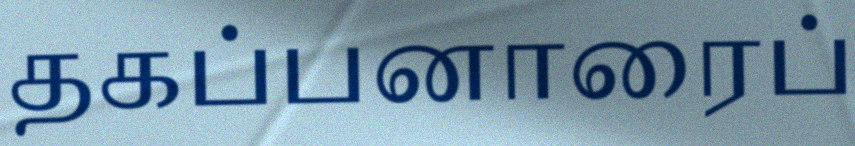
தகப்பனாரைப்